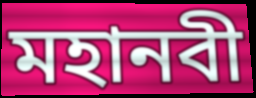
মহানবী